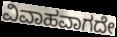
ವಿವಾಹವಾಗದೇ